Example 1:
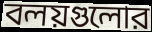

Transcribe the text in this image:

বলয়গুলোর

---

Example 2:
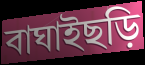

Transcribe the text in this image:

বাঘাইছড়ি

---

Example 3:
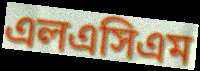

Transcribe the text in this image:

এলএসিএম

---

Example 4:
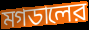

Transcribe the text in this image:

মগডালের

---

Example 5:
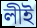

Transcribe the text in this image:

লীই